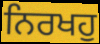
ਨਿਰਖਹੁ